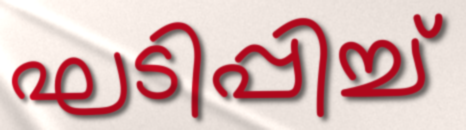
ഘടിപ്പിച്ച്